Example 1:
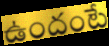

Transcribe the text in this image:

ఉందంటే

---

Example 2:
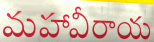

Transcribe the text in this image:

మహావీరాయ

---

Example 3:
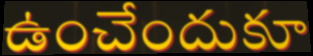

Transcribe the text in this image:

ఉంచేందుకూ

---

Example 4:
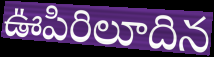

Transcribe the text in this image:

ఊపిరిలూదిన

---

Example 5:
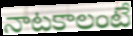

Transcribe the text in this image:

నాటకాలంటే